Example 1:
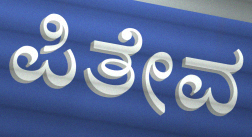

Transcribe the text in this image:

ಪಿತೇವ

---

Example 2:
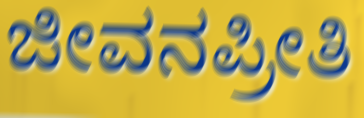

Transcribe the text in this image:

ಜೀವನಪ್ರೀತಿ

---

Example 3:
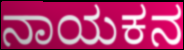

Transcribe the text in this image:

ನಾಯಕನ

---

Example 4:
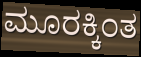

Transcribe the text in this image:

ಮೂರಕ್ಕಿಂತ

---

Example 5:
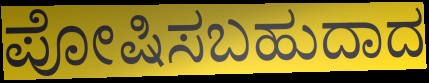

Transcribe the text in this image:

ಪೋಷಿಸಬಹುದಾದ